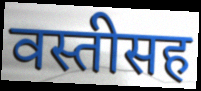
वस्तीसह